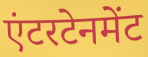
एंटरटेनमेंट